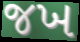
જખ